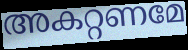
അകറ്റണമേ